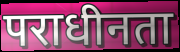
पराधीनता